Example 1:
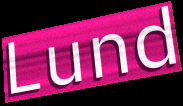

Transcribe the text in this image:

Lund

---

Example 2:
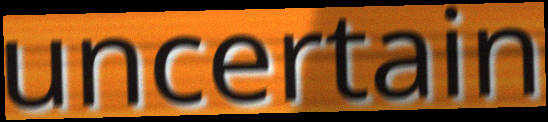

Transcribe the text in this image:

uncertain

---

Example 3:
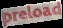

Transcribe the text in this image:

preload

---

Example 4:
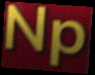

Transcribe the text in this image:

Np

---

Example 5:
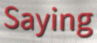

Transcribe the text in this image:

Saying